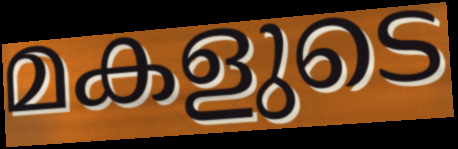
മകളുടെ